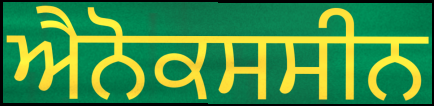
ਐਨੋਕਸਸੀਨ